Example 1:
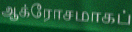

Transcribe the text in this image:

ஆக்ரோசமாகப்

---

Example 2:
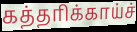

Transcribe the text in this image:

கத்தரிக்காய்ச்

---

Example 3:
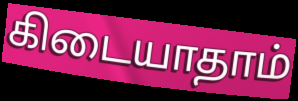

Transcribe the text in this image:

கிடையாதாம்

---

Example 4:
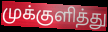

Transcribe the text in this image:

முக்குளித்து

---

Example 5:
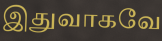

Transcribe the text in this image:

இதுவாகவே